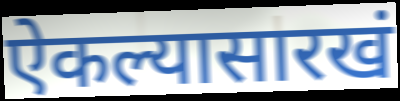
ऐकल्यासारखं